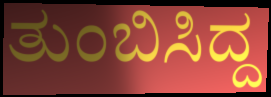
ತುಂಬಿಸಿದ್ದ